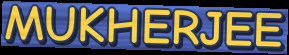
MUKHERJEE